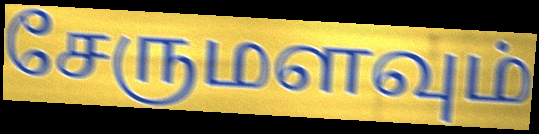
சேருமளவும்